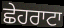
ਛੇਹਰਾਟਾ